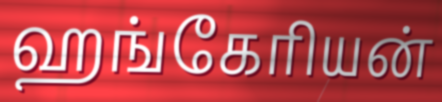
ஹங்கேரியன்